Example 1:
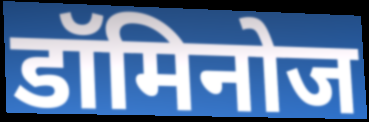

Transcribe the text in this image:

डॉमिनोज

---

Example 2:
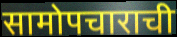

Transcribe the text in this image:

सामोपचाराची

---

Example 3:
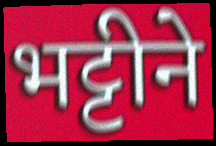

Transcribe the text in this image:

भट्टीने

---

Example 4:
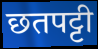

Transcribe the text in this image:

छतपट्टी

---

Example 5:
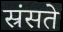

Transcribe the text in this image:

स्रंसते